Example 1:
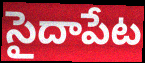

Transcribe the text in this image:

సైదాపేట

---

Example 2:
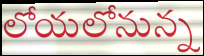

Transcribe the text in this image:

లోయలోనున్న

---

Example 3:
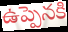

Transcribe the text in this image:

ఉప్పెనకి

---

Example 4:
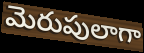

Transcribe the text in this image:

మెరుపులాగా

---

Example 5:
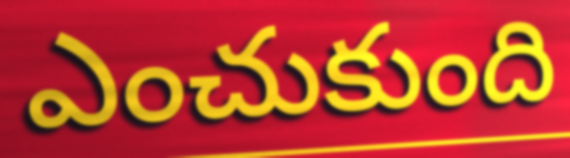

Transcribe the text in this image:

ఎంచుకుంది